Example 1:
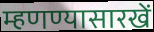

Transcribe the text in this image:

म्हणण्यासारखें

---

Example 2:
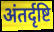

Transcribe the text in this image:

अंतर्दृष्टि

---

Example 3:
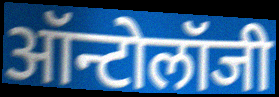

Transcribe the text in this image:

ऑन्टोलॉजी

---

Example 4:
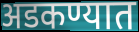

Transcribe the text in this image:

अडकण्यात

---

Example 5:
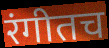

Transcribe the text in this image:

रंगीतच